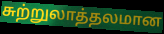
சுற்றுலாத்தலமான